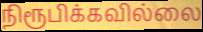
நிரூபிக்கவில்லை